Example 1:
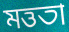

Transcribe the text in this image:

মত্ততা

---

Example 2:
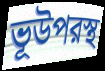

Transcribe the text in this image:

ভূউপরস্থ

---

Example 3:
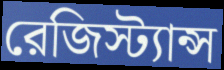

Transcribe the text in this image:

রেজিস্ট্যান্স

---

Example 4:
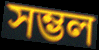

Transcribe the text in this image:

সম্ভল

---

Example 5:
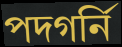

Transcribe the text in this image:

পদগর্নি